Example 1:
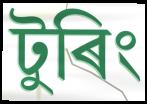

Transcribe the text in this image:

টুৰিং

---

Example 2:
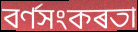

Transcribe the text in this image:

বৰ্ণসংকৰতা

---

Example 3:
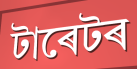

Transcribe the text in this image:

টাৰেটৰ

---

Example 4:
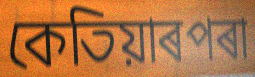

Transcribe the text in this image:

কেতিয়াৰপৰা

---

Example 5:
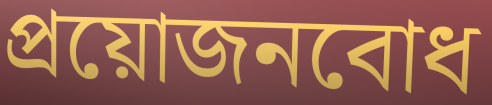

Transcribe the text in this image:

প্ৰয়োজনবোধ